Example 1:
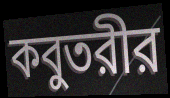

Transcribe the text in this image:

কবুতরীর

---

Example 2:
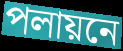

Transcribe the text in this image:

পলায়নে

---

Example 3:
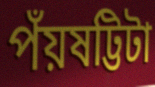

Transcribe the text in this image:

পঁয়ষট্টিটা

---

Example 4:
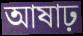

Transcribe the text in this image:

আষাঢ়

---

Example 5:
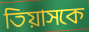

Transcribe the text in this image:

তিয়াসকে